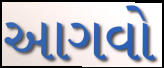
આગવો